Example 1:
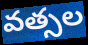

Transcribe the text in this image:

వత్సల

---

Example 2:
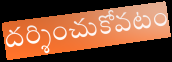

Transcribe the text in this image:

దర్శించుకోవటం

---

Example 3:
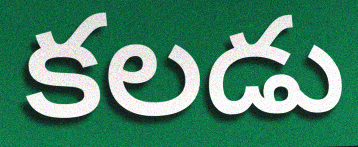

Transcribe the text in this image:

కలడు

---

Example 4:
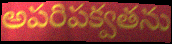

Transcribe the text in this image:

అపరిపక్వతను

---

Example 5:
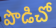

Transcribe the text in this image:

పొడిచో